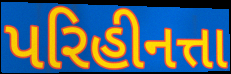
પરિહીનત્તા